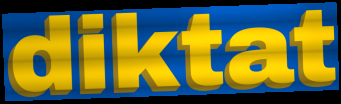
diktat